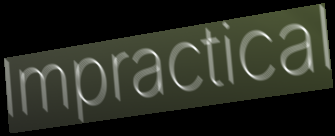
Impractical